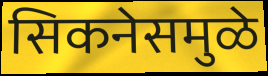
सिकनेसमुळे